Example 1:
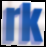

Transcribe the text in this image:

rk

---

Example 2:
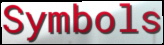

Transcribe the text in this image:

Symbols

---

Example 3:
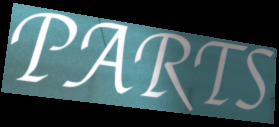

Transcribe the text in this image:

PARTS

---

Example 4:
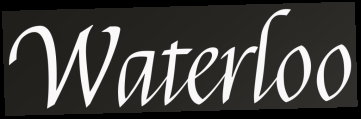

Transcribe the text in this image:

Waterloo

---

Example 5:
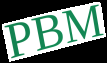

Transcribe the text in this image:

PBM